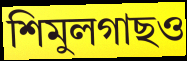
শিমুলগাছও